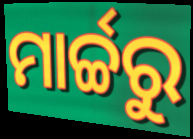
ମାର୍ଚ୍ଚରୁ